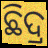
ଛିଦ୍ର